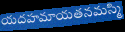
యదహమాయతనమస్మి